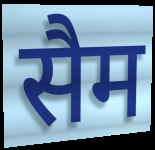
सैम